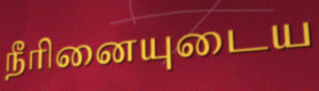
நீரினையுடைய